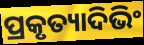
ପ୍ରକୃତ୍ୟାଦିଭିଂ